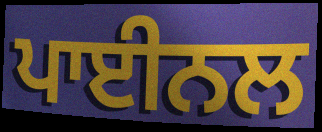
ਪਾਈਨਲ